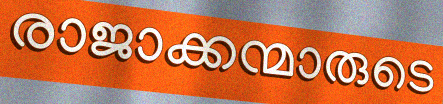
രാജാക്കന്മാരുടെ